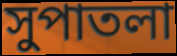
সুপাতলা